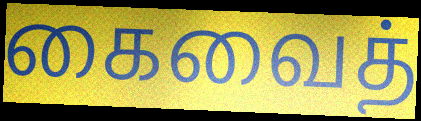
கைவைத்